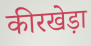
कीरखेड़ा